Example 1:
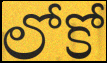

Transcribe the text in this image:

లోకో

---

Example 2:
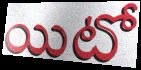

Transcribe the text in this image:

యిటో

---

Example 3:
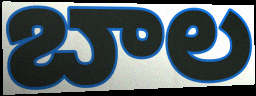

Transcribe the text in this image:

బాల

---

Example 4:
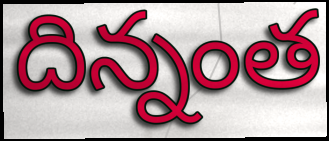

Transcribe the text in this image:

దిన్నంత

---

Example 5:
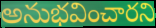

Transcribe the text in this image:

అనుభవించారని